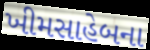
ખીમસાહેબના